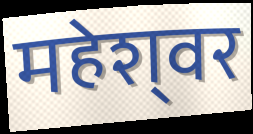
महेश्वर